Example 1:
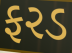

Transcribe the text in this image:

ફરડ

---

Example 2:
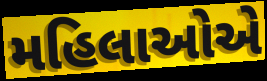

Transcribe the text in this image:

મહિલાઓએ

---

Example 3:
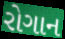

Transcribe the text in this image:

રોગાન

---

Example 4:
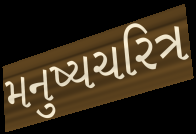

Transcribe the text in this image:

મનુષ્યચરિત્ર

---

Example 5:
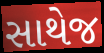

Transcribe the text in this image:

સાથેજ